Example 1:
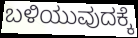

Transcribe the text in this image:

ಬಳಿಯುವುದಕ್ಕೆ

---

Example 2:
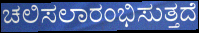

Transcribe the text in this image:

ಚಲಿಸಲಾರಂಭಿಸುತ್ತದೆ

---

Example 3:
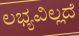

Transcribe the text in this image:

ಲಭ್ಯವಿಲ್ಲದೆ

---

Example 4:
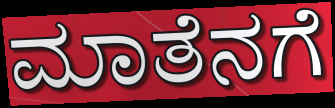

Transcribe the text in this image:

ಮಾತೆನಗೆ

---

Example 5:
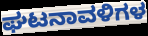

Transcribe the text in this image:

ಘಟನಾವಳಿಗಳ